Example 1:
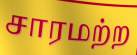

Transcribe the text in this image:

சாரமற்ற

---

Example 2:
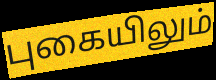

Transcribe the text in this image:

புகையிலும்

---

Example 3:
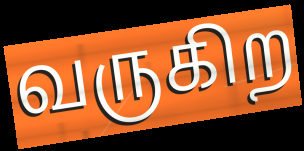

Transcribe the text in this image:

வருகிற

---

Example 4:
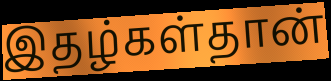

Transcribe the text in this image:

இதழ்கள்தான்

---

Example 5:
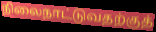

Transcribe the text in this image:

நிலைநாட்டுவதற்குத்